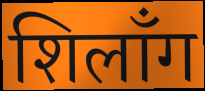
शिलाँग